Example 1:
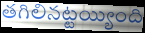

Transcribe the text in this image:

తగిలినట్టయ్యింది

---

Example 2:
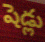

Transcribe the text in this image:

షెడ్లు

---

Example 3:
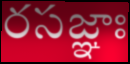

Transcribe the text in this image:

రసజ్ఞాః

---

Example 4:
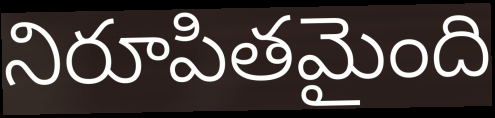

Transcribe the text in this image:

నిరూపితమైంది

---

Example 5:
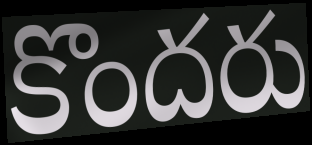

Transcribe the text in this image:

కొందరు